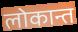
लोकान्त